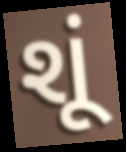
શૂં